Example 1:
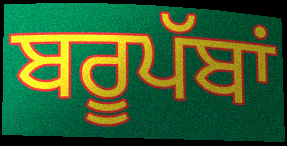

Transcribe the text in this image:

ਬਰੂਪੱਬਾਂ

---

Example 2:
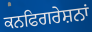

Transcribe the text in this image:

ਕਨਫਿਗਰੇਸ਼ਨਾਂ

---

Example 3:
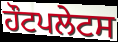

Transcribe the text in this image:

ਹੌਟਪਲੇਟਸ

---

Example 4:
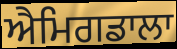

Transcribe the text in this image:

ਐਮਿਗਡਾਲਾ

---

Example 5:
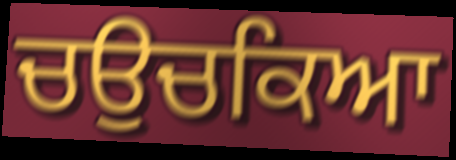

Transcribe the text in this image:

ਚਉਚਕਿਆ